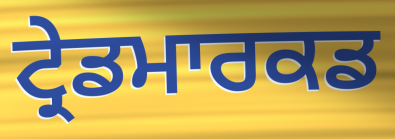
ਟ੍ਰੇਡਮਾਰਕਡ